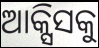
ଆକ୍ସିସକୁ